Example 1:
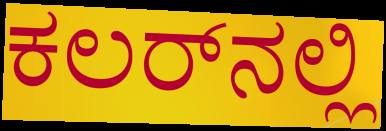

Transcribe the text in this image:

ಕಲರ್‌ನಲ್ಲಿ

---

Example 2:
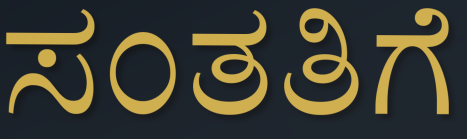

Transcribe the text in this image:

ಸಂತತಿಗೆ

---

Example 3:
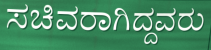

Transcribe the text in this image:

ಸಚಿವರಾಗಿದ್ದವರು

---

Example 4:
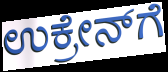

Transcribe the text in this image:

ಉಕ್ರೇನ್‌ಗೆ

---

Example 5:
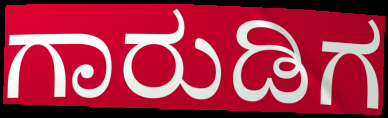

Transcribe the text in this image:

ಗಾರುಡಿಗ